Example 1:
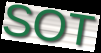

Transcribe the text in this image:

SOT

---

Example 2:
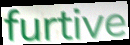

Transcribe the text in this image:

furtive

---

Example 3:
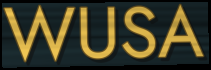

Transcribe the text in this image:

WUSA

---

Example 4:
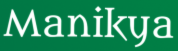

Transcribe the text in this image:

Manikya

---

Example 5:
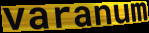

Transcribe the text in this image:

varanum